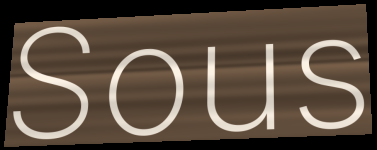
Sous